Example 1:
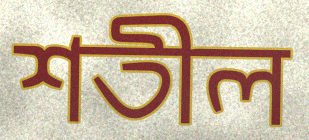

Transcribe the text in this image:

শতীল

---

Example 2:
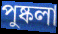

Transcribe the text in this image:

পুষ্কলা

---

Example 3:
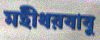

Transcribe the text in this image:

মহীধরবাবু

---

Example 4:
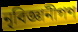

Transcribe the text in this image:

নৃবিজ্ঞানীগণ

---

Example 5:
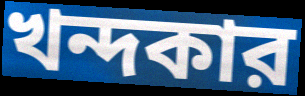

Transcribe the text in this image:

খন্দকার